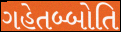
ગહેતબ્બોતિ